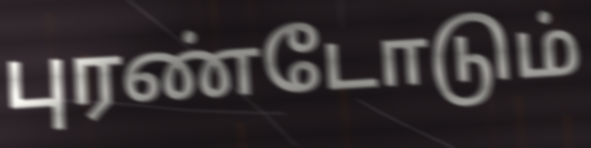
புரண்டோடும்